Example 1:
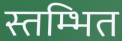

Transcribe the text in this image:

स्तम्भित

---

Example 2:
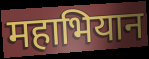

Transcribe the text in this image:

महाभियान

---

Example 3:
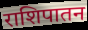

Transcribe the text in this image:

राशिपातन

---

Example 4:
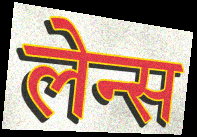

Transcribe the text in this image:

लेन्स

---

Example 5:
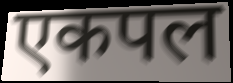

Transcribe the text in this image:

एकपल